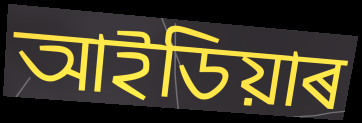
আইডিয়াৰ